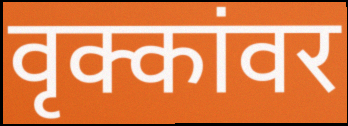
वृक्कांवर